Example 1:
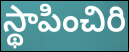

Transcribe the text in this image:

స్థాపించిరి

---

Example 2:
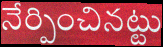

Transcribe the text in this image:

నేర్పించినట్టు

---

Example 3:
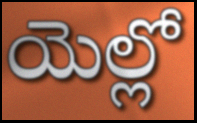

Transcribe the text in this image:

యెల్లో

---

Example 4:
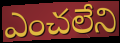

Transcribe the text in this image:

ఎంచలేని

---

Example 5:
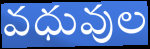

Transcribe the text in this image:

వధువుల